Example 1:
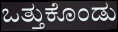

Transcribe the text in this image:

ಒತ್ತುಕೊಂಡು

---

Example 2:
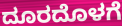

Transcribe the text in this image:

ದೂರದೊಳಗೆ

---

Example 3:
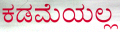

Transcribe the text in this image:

ಕಡಮೆಯಲ್ಲ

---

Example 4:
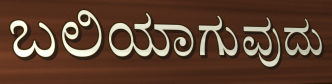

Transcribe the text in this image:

ಬಲಿಯಾಗುವುದು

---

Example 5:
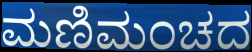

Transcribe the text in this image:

ಮಣಿಮಂಚದ